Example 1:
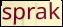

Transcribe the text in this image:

sprak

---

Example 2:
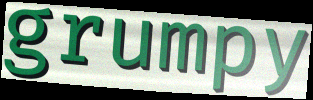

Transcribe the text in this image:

grumpy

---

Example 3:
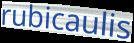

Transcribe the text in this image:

rubicaulis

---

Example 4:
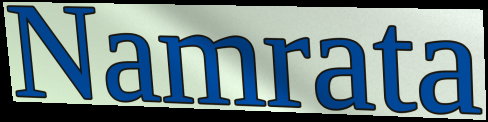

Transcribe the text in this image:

Namrata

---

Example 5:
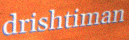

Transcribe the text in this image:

drishtiman